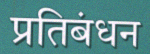
प्रतिबंधन